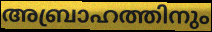
അബ്രാഹത്തിനും